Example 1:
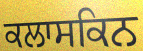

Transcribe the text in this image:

ਕਲਾਸਕਿਨ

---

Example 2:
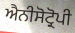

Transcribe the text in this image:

ਐਨੀਸੋਟ੍ਰੋਪੀ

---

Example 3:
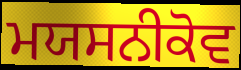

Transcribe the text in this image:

ਮਯਸਨੀਕੋਵ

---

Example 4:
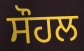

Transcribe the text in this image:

ਸੌਹਲ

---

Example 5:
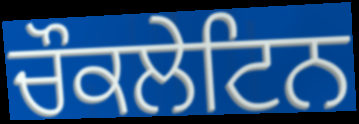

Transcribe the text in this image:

ਚੌਕਲੇਟਿਨ